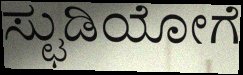
ಸ್ಟುಡಿಯೋಗೆ